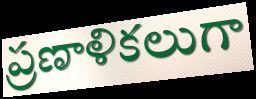
ప్రణాళికలుగా